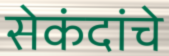
सेकंदांचे